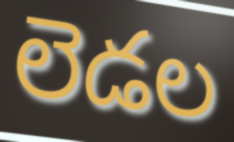
లెడల